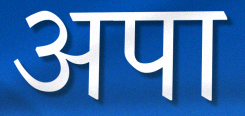
अपा